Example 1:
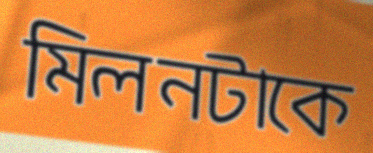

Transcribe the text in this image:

মিলনটাকে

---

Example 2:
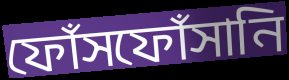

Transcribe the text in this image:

ফোঁসফোঁসানি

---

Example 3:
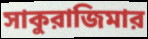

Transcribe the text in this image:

সাকুরাজিমার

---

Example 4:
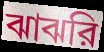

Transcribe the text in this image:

ঝাঝরি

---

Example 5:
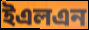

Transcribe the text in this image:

ইএলএন